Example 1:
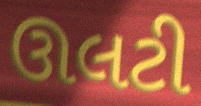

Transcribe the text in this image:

ઊલટી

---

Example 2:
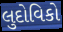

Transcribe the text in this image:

લુદોવિકો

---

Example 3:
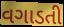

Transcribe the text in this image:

વગાડતી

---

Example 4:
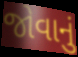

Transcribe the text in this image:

જોવાનું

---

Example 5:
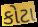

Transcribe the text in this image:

કોટા